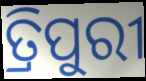
ତ୍ରିପୁରୀ